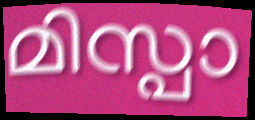
മിസ്പാ